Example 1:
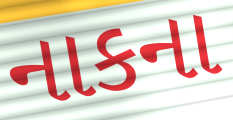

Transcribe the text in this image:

નાકના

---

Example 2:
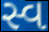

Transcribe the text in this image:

સ્વ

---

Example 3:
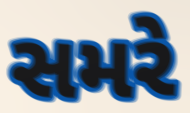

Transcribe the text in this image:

સમરે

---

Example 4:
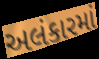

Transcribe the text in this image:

અલંકારમાં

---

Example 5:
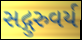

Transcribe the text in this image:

સદ્ગુરુવર્ય